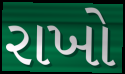
રાખો